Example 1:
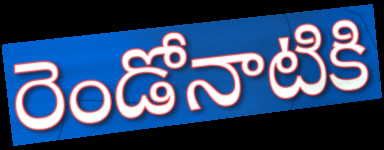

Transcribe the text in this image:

రెండోనాటికి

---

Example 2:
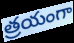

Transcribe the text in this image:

త్రయంగా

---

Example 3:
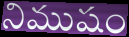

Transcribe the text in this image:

నిముషం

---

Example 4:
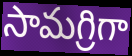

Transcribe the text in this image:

సామగ్రిగా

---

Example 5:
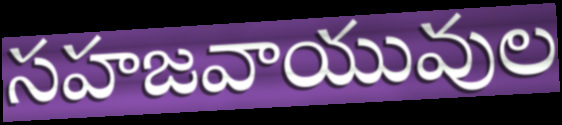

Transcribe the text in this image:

సహజవాయువుల